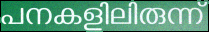
പനകളിലിരുന്ന്